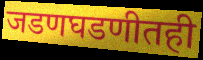
जडणघडणीतही